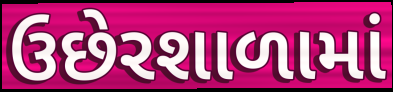
ઉછેરશાળામાં